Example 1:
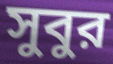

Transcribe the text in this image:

সুবুর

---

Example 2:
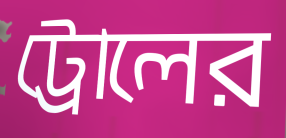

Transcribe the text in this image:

ট্রোলের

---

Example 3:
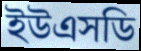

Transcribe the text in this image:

ইউএসডি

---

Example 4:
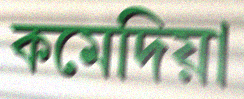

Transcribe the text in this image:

কমেদিয়া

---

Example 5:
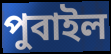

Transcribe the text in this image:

পুবাইল